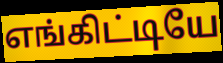
எங்கிட்டியே